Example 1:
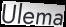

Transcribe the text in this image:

Ulema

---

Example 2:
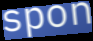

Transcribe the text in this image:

spon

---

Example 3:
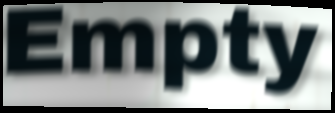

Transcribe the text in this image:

Empty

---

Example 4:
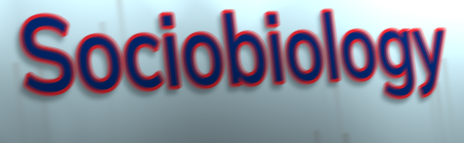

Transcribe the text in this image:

Sociobiology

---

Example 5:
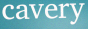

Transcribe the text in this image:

cavery